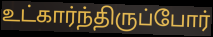
உட்கார்ந்திருப்போர்